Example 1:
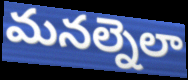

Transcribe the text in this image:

మనల్నెలా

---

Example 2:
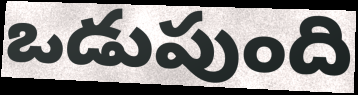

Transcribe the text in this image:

ఒడుపుంది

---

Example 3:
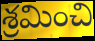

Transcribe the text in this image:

శ్రమించి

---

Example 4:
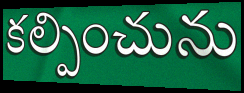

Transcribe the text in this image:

కల్పించును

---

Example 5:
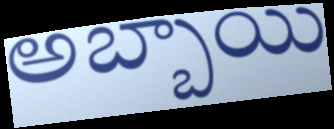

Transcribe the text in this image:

అబ్బాయి